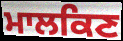
ਮਾਲਕਿਣ